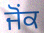
ਜੋਂਕ